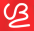
ഗൂ